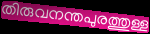
തിരുവനന്തപുരത്തുള്ള